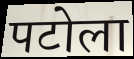
पटोला